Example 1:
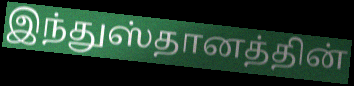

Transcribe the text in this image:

இந்துஸ்தானத்தின்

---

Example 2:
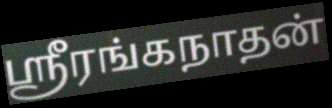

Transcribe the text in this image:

ஸ்ரீரங்கநாதன்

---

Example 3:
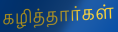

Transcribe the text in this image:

கழித்தார்கள்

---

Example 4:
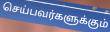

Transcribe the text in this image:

செய்பவர்களுக்கும்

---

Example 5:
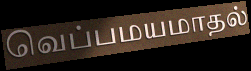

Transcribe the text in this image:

வெப்பமயமாதல்